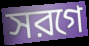
সরগে